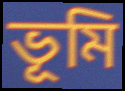
ভূমি